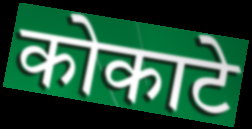
कोकाटे